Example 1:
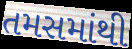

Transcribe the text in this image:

તમસમાંથી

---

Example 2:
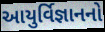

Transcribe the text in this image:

આયુર્વિજ્ઞાનનો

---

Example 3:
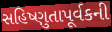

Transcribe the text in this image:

સહિષ્ણુતાપૂર્વકની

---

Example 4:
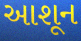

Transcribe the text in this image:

આશૂન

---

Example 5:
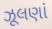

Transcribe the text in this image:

ઝૂલણાં